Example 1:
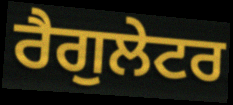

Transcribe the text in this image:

ਰੈਗੁਲੇਟਰ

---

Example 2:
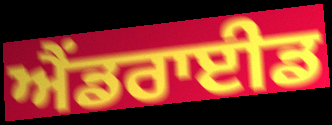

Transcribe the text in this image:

ਐਂਡਰਾਈਡ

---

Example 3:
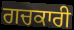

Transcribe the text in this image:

ਗਚਕਾਰੀ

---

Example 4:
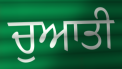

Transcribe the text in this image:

ਚੁਆਤੀ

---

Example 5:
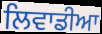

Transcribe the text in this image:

ਲਿਵਾਡੀਆ